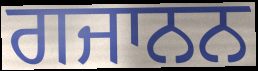
ਗਜਾਨਨ